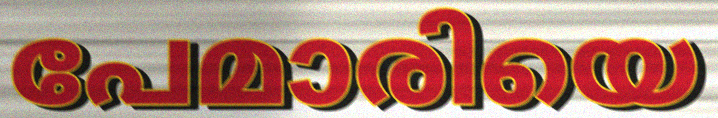
പേമാരിയെ